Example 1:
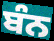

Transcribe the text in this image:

ਬੰਨ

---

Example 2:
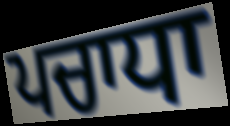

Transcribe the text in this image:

ਪਚਾਧਾ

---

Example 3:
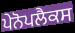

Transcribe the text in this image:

ਪੇਨੋਪਲੈਕਸ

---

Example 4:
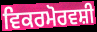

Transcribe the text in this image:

ਵਿਕਰਮੋਰਵਸ਼ੀ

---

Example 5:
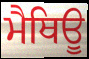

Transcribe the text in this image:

ਮੈਥਿਊ